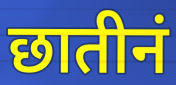
छातीनं